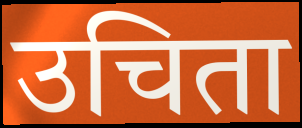
उचिता